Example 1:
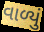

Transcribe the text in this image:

વાળ્યું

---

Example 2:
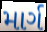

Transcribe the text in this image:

માર્ગ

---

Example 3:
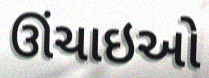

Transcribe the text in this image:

ઊંચાઇઓ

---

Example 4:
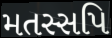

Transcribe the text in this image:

મતસ્સપિ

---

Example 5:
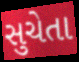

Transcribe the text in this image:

સુચેતા